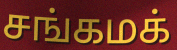
சங்கமக்